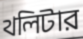
থলিটার